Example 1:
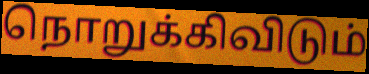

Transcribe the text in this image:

நொறுக்கிவிடும்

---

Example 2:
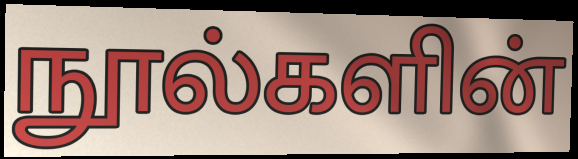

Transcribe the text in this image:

நூல்களின்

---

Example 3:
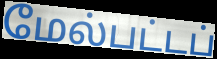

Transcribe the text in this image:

மேல்பட்டப்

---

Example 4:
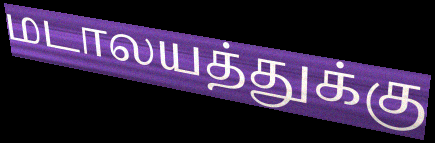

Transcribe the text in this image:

மடாலயத்துக்கு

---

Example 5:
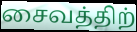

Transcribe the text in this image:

சைவத்திற்